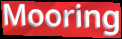
Mooring